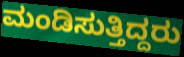
ಮಂಡಿಸುತ್ತಿದ್ದರು